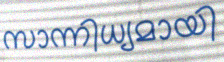
സാന്നിധ്യമായി